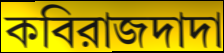
কবিরাজদাদা